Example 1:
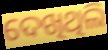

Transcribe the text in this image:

ଦେଖିଥିଲି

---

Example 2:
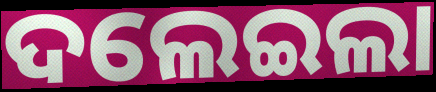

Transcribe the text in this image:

ଦଲେଇଲା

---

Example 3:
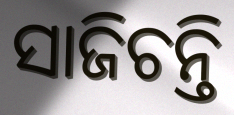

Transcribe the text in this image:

ସାଜିଚନ୍ତି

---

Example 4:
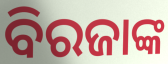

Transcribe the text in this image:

ବିରଜାଙ୍କ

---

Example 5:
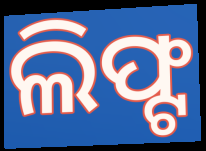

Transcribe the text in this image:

ଲିଫ୍ଟ